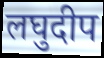
लघुदीप